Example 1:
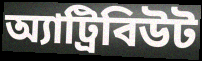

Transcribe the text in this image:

অ্যাট্রিবিউট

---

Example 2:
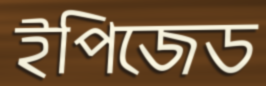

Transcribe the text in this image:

ইপিজেড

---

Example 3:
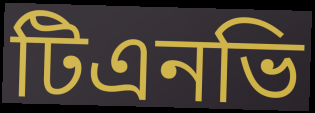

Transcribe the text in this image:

টিএনভি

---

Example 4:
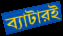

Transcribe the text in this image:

ব্যাটারই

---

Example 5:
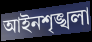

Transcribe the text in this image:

আইনশৃঙ্খলা